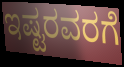
ಇಷ್ಟರವರಗೆ